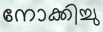
നോക്കിച്ചു